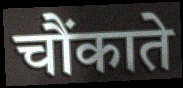
चौंकाते